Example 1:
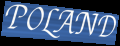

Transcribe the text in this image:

POLAND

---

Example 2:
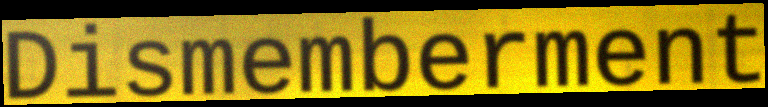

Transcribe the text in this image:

Dismemberment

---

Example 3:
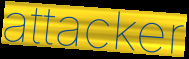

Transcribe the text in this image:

attacker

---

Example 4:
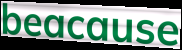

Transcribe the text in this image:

beacause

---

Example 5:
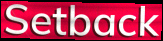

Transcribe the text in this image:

Setback